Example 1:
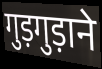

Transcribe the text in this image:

गुड़गुड़ाने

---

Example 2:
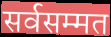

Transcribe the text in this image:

सर्वसम्मत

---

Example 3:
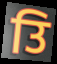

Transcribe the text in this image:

उि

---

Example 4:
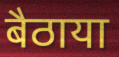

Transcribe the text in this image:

बैठाया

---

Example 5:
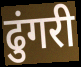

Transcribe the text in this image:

ढुंगरी